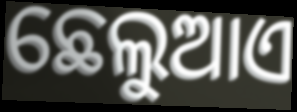
ଛେଲୁଆଏ